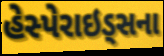
હેસ્પેરાઇડ્સના